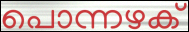
പൊന്നഴക്